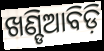
ଖଣ୍ଡିଆବିଡ଼ି